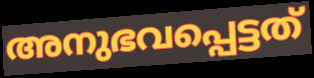
അനുഭവപ്പെട്ടത്